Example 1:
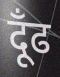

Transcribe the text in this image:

दूँढ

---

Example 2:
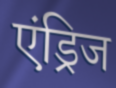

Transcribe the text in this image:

एंड्रिज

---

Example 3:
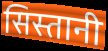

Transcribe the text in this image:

सिस्तानी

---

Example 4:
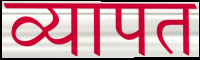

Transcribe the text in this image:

व्यापत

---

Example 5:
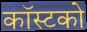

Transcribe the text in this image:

कॉस्टको